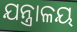
ଯନ୍ତ୍ରାଳୟ